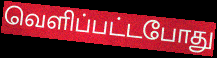
வெளிப்பட்டபோது